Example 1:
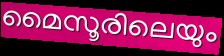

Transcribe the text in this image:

മൈസൂരിലെയും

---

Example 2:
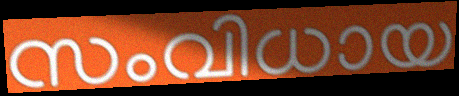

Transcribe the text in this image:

സംവിധായ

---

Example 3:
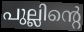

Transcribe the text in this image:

പുല്ലിന്റെ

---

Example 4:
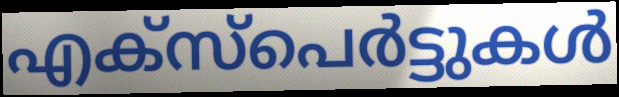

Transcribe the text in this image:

എക്സ്പെർട്ടുകൾ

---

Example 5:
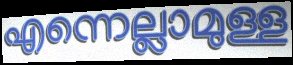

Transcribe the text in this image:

എന്നെല്ലാമുള്ള